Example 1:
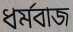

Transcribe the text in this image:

ধর্মবাজ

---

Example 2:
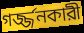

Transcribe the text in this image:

গর্জ্জনকারী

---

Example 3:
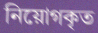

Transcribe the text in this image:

নিয়োগকৃত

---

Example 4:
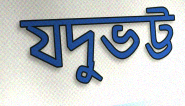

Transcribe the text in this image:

যদুভট্ট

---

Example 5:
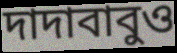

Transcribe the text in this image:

দাদাবাবুও